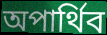
অপার্থিব